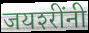
जयश्रींनी